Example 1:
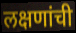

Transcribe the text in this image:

लक्षणांची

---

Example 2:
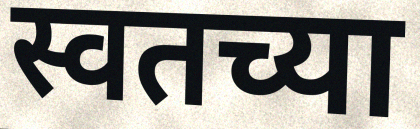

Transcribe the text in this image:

स्वतच्या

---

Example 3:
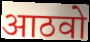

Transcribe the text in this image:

आठवो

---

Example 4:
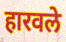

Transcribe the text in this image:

हारवले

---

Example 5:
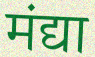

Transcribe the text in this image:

मंद्या